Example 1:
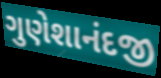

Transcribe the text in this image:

ગુણેશાનંદજી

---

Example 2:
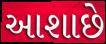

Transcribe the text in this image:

આશાછે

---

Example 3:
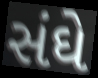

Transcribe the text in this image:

સંઘે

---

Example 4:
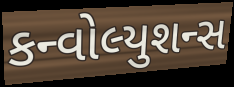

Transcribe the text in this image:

કન્વોલ્યુશન્સ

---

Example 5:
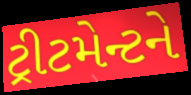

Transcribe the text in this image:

ટ્રીટમેન્ટને